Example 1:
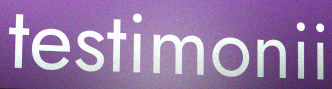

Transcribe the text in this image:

testimonii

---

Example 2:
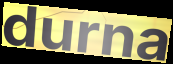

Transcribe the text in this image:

durna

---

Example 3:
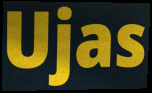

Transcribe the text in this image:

Ujas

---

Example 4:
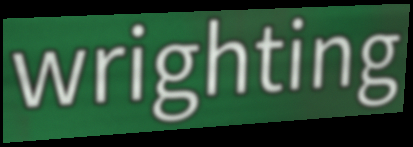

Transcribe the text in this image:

wrighting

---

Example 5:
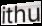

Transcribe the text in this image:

ithu